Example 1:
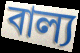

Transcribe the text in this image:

বাল্য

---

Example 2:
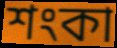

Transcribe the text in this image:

শংকা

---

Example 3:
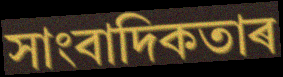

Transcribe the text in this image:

সাংবাদিকতাৰ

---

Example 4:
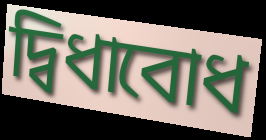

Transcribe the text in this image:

দ্বিধাবোধ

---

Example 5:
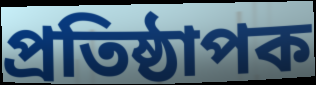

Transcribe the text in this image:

প্ৰতিষ্ঠাপক